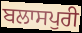
ਬਲਾਸਪੁਰੀ